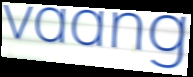
vaang